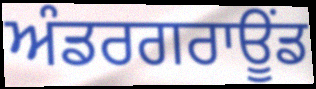
ਅੰਡਰਗਰਾਊੰਡ